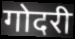
गोदरी